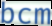
bcm